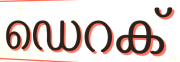
ഡെറക്